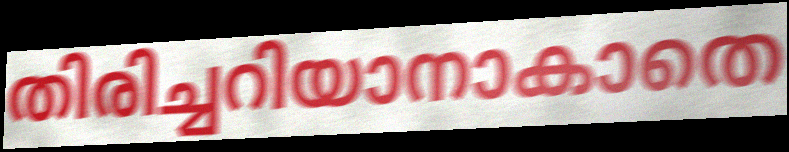
തിരിച്ചറിയാനാകാതെ